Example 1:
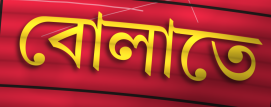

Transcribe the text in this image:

বোলাতে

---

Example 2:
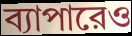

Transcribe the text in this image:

ব্যাপারেও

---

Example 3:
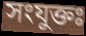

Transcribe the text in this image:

সংযুক্তঃ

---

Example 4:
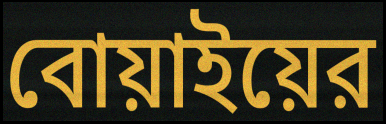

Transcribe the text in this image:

বোয়াইয়ের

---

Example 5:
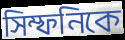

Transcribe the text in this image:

সিম্ফনিকে